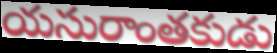
యసురాంతకుడు